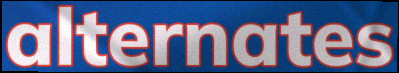
alternates